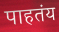
पाहतंय